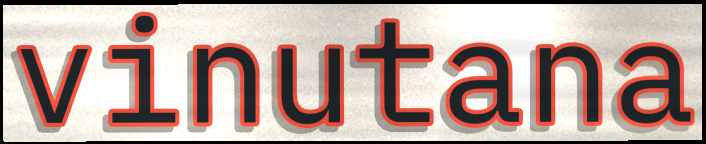
vinutana